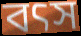
বৎস